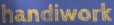
handiwork